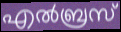
എൽബ്രസ്